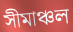
সীমাঞ্চল